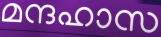
മന്ദഹാസ